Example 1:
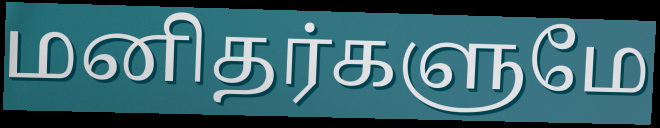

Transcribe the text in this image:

மனிதர்களுமே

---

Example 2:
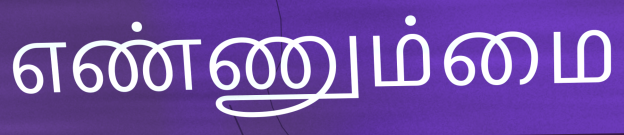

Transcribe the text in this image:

எண்ணும்மை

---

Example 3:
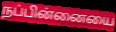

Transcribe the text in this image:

நப்பின்னையை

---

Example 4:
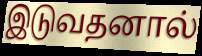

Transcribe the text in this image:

இடுவதனால்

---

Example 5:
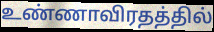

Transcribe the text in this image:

உண்ணாவிரதத்தில்